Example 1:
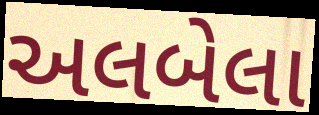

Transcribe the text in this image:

અલબેલા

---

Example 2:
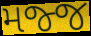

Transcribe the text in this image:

મજ્જ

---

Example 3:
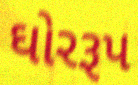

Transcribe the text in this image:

ઘોરરૂપ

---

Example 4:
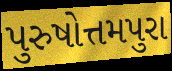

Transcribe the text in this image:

પુરુષોત્તમપુરા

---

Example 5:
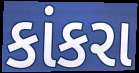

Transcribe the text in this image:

કાંકરા